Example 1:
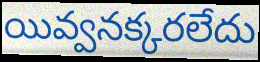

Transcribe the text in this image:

యివ్వనక్కరలేదు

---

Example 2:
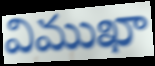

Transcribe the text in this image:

విముఖా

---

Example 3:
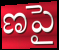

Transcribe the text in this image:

ణపై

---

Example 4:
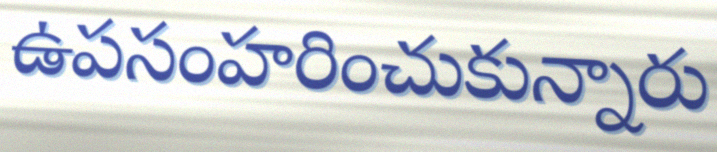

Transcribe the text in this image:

ఉపసంహరించుకున్నారు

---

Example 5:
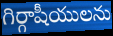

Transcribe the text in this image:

గిర్గాషీయులను